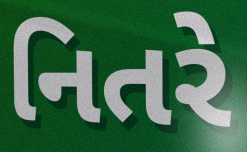
નિતરે